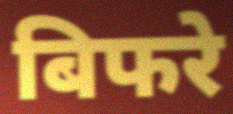
बिफरे